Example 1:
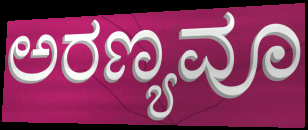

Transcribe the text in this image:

ಅರಣ್ಯವೂ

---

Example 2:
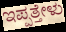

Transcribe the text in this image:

ಇಪ್ಪತ್ತೇಳು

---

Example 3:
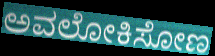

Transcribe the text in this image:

ಅವಲೋಕಿಸೋಣ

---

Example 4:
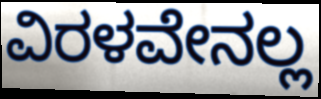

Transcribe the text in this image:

ವಿರಳವೇನಲ್ಲ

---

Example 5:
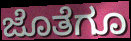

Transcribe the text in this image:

ಜೊತೆಗೂ